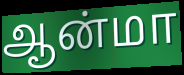
ஆன்மா